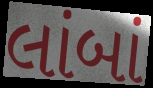
લાંબાં